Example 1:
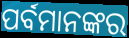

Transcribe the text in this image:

ପର୍ବମାନଙ୍କର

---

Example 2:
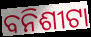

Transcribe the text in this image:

ବନିଶୀଟା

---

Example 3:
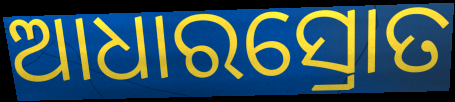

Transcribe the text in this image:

ଆଧାରସ୍ରୋତ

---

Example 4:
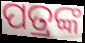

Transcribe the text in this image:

ପତ୍ରଙ୍କ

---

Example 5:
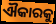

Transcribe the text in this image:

ଐକାରକୁ